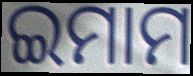
ଇମାମ